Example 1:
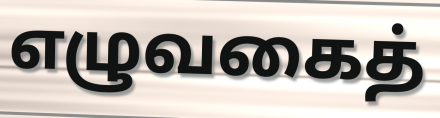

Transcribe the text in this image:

எழுவகைத்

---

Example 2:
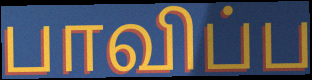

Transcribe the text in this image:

பாவிப்ப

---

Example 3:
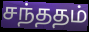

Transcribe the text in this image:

சந்ததம்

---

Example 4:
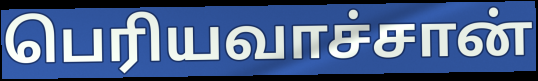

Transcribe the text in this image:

பெரியவாச்சான்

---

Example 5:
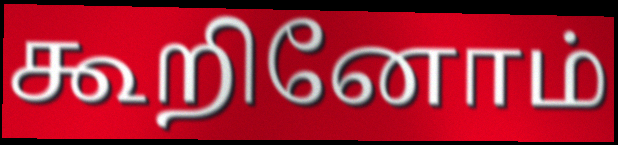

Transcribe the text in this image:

கூறினோம்